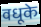
वधूके